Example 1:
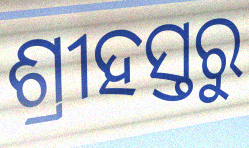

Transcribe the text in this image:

ଶ୍ରୀହସ୍ତରୁ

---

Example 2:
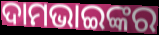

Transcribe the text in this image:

ଦାମଭାଇଙ୍କର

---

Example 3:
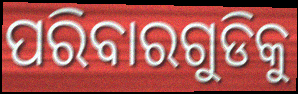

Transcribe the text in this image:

ପରିବାରଗୁଡିକୁ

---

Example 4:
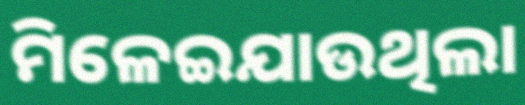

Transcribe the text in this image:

ମିଳେଇଯାଉଥିଲା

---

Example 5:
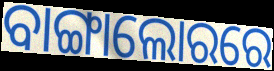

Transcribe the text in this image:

ବାଙ୍ଗାଲୋରରେ